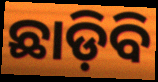
ଛାଡ଼ିବି